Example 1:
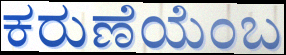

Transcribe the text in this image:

ಕರುಣೆಯೆಂಬ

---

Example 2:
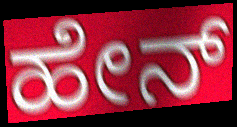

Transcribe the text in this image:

ಹೇನ್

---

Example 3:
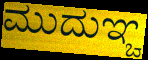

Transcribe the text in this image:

ಮುದುಞ್ಚ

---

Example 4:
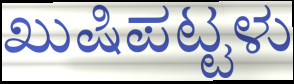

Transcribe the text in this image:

ಖುಷಿಪಟ್ಟಳು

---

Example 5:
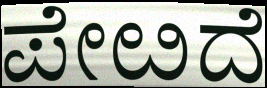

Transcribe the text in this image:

ಪೇೞದೆ